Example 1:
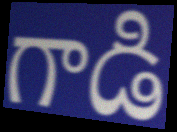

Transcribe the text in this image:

గాడి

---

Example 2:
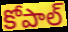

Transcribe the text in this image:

కోపాల్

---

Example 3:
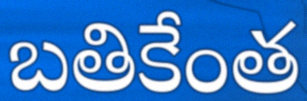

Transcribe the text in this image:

బతికేంత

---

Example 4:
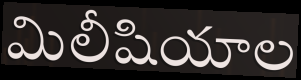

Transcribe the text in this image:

మిలీషియాల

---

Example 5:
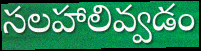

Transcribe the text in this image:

సలహాలివ్వడం